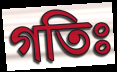
গতিঃ